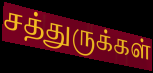
சத்துருக்கள்